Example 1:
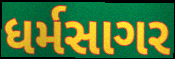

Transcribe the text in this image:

ધર્મસાગર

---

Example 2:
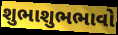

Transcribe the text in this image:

શુભાશુભભાવો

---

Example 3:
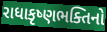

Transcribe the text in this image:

રાધાકૃષ્ણભક્તિનો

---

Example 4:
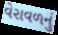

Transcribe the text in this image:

વેરાવળનું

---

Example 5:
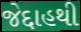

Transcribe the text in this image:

જેદ્દાહથી